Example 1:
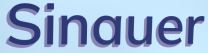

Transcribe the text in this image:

Sinauer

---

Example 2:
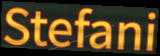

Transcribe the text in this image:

Stefani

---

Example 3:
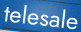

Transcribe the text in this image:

telesale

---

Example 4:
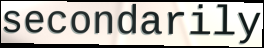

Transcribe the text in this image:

secondarily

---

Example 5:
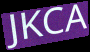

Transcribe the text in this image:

JKCA